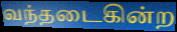
வந்தடைகின்ற